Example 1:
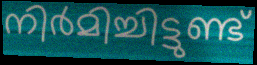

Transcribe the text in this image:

നിർമിച്ചിട്ടുണ്ട്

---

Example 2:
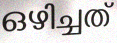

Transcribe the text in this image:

ഒഴിച്ചത്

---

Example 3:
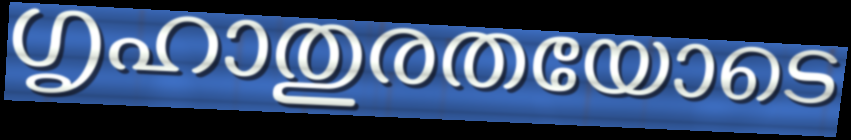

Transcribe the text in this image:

ഗൃഹാതുരതയോടെ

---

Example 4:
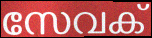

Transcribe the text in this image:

സേവക്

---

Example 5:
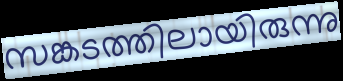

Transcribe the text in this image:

സങ്കടത്തിലായിരുന്നു